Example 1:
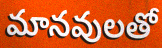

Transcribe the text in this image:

మానవులతో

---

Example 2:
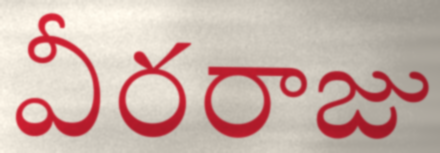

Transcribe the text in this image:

వీరరాజు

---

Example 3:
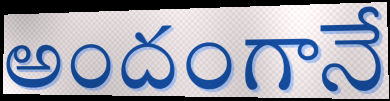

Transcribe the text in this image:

అందంగానే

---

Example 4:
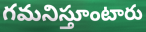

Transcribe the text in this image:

గమనిస్తూంటారు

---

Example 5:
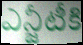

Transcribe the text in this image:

ఎన్జీటీకి